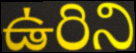
ఉరిని